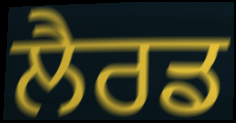
ਲੈਰਡ